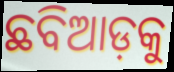
ଛବିଆଡ଼କୁ